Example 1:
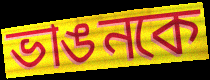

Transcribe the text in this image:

ভাঙনকে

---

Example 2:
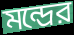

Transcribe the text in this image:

মন্দ্রের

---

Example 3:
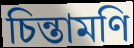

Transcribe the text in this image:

চিন্তামণি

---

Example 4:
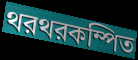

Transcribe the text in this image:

থরথরকম্পিত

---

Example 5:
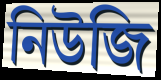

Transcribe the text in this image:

নিউজি